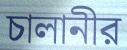
চালানীর